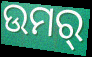
ଉମର୍